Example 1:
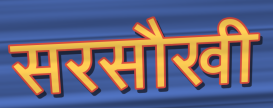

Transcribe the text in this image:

सरसौखी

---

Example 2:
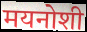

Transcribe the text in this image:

मयनोशी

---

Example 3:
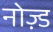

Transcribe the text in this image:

नोज़्ड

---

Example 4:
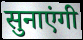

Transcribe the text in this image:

सुनाएंगी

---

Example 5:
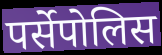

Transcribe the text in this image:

पर्सेपोलिस